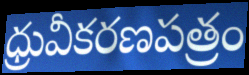
ధ్రువీకరణపత్రం